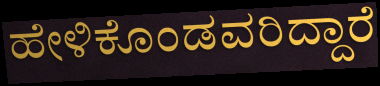
ಹೇಳಿಕೊಂಡವರಿದ್ದಾರೆ